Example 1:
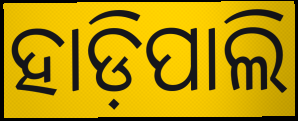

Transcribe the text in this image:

ହାଡ଼ିପାଲି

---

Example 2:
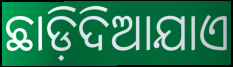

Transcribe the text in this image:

ଛାଡ଼ିଦିଆଯାଏ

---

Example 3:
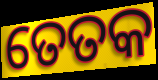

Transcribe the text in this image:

ତେତକ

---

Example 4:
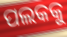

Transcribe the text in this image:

ପଲକକୁ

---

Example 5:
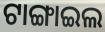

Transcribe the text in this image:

ଟାଙ୍ଗାଇଲ